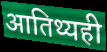
आतिथ्यही